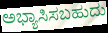
ಅಭ್ಯಾಸಿಸಬಹುದು